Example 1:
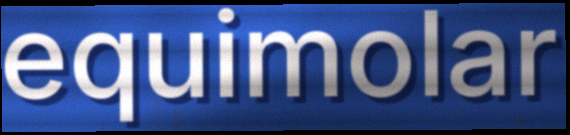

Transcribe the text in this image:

equimolar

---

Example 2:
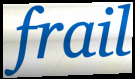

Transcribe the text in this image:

frail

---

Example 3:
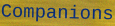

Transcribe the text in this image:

Companions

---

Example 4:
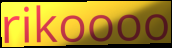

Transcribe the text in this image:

rikoooo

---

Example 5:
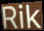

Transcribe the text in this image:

Rik